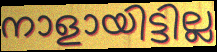
നാളായിട്ടില്ല